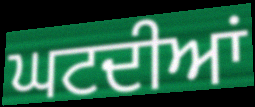
ਘਟਦੀਆਂ